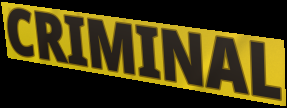
CRIMINAL